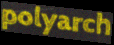
polyarch